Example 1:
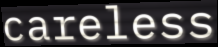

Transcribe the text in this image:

careless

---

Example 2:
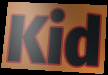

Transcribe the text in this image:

Kid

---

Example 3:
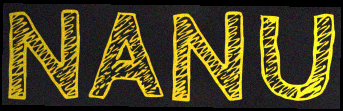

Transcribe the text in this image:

NANU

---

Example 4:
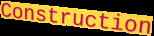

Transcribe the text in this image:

Construction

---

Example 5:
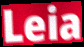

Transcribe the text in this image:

Leia